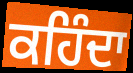
ਕਹਿੰਦਾ